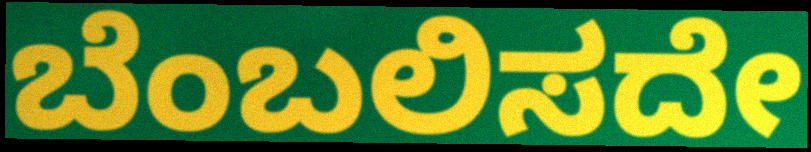
ಬೆಂಬಲಿಸದೇ